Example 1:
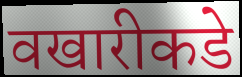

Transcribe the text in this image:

वखारीकडे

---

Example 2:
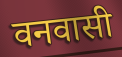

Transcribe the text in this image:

वनवासी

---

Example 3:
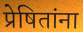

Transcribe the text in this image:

प्रेषितांना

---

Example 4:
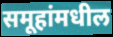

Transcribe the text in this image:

समूहांमधील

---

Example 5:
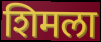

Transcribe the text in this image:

शिमला